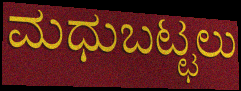
ಮಧುಬಟ್ಟಲು